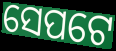
ସେପଟେ